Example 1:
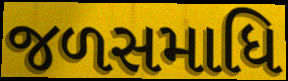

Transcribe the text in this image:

જળસમાધિ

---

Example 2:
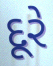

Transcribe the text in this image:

દૂરે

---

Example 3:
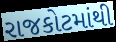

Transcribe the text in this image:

રાજકોટમાંથી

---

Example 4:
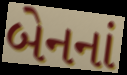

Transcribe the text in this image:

બેનનાં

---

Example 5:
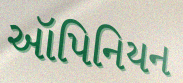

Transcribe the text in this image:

ઑપિનિયન